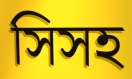
সিসহ